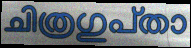
ചിത്രഗുപ്‌താ